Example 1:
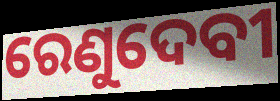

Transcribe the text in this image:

ରେଣୁଦେବୀ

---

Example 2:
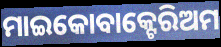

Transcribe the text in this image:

ମାଇକୋବାକ୍ଟେରିଅମ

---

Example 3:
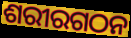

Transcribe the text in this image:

ଶରୀରଗଠନ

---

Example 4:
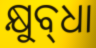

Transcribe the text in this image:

କ୍ଷୁବ୍‌ଧା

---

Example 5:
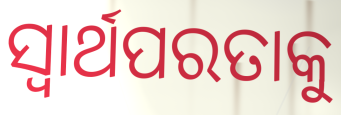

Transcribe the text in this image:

ସ୍ଵାର୍ଥପରତାକୁ